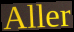
Aller